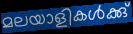
മലയാളികൾക്കു്